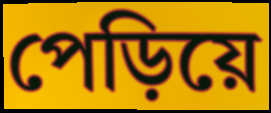
পেড়িয়ে